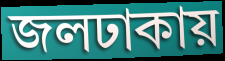
জলঢাকায়